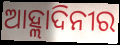
ଆହ୍ଲାଦିନୀର